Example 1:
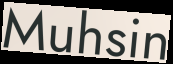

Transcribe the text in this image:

Muhsin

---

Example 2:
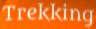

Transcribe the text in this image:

Trekking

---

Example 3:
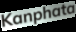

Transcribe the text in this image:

Kanphata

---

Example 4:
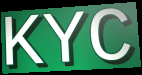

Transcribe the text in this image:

KYC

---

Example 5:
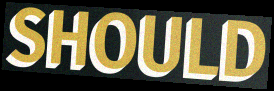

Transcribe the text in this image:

SHOULD